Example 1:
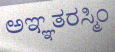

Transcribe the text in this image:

ಅಞ್ಞತರಸ್ಮಿಂ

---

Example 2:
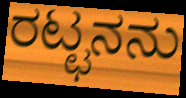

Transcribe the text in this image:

ರಟ್ಟನನು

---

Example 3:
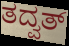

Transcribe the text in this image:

ತದ್ವತ್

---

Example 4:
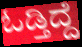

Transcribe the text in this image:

ಓಡ್ತಿದ್ದೆ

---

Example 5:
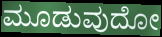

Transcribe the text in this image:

ಮೂಡುವುದೋ